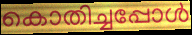
കൊതിച്ചപ്പോൾ